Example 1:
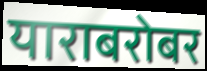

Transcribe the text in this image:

याराबरोबर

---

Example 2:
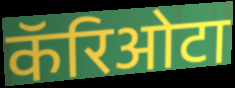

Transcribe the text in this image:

कॅरिओटा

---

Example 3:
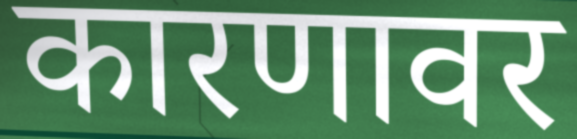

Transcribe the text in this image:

कारणावर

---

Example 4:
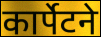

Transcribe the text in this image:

कार्पेटने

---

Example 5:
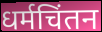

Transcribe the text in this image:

धर्मचिंतन